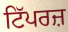
ਟਿੱਪਰਜ਼